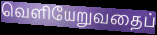
வெளியேறுவதைப்